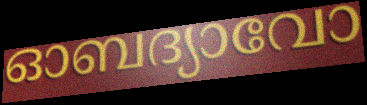
ഓബദ്യാവോ